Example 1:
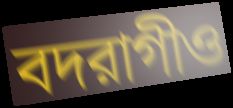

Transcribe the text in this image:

বদরাগীও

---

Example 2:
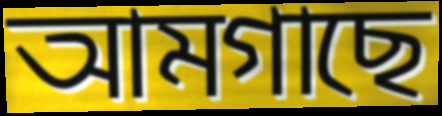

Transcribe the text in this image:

আমগাছে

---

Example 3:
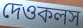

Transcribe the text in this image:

দেওকলস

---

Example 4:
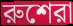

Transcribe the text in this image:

রুশেরা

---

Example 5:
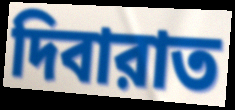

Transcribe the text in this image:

দিবারাত